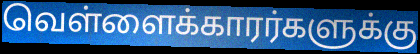
வெள்ளைக்காரர்களுக்கு